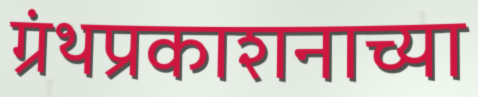
ग्रंथप्रकाशनाच्या